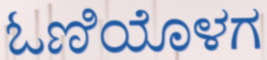
ಓಣಿಯೊಳಗ